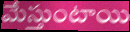
మేస్తుంటాయి